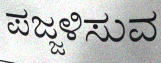
ಪಜ್ಜಳಿಸುವ